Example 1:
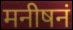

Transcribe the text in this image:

मनीषनं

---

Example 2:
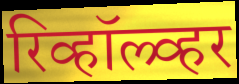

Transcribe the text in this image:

रिव्हॉल्व्हर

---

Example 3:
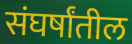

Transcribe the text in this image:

संघर्षांतील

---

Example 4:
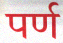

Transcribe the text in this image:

पर्ण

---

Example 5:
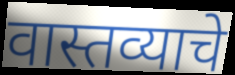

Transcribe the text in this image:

वास्तव्याचे